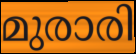
മുരാരി